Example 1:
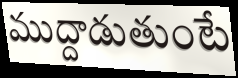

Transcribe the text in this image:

ముద్దాడుతుంటే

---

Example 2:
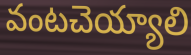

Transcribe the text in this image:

వంటచెయ్యాలి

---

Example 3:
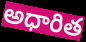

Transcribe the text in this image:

అధారిత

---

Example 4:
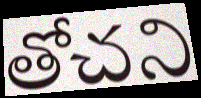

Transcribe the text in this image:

తోచని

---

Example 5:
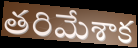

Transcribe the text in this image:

తరిమేశాక